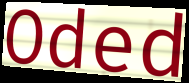
Oded